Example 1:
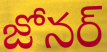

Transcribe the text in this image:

జోనర్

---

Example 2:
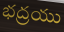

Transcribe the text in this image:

భద్రయు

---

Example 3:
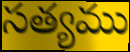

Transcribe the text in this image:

సత్యము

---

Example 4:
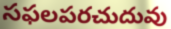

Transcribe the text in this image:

సఫలపరచుదువు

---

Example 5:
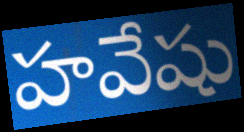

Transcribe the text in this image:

హవేషు